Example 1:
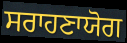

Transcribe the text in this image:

ਸਰਾਹਣਾਯੋਗ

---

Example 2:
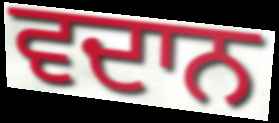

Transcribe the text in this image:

ਵਦਾਨ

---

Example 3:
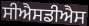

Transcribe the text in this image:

ਸੀਐਸਡੀਐਸ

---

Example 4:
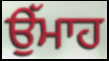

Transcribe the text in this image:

ਉੱਮਾਹ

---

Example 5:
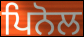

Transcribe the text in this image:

ਪਿਨੋਲ